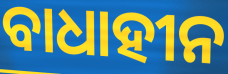
ବାଧାହୀନ